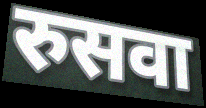
रुसवा